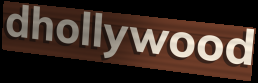
dhollywood